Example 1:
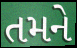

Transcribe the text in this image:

તમને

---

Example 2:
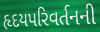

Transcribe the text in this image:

હૃદયપરિવર્તનની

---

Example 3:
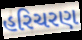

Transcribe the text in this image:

હરિચરણ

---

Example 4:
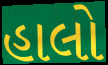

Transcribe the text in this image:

હાલો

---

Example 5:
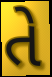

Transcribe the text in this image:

તે